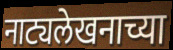
नाट्यलेखनाच्या